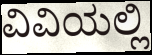
ವಿವಿಯಲ್ಲಿ